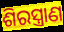
ଶିରସ୍ତ୍ରାଣ